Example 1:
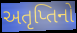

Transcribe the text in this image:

અતૃપ્તિનો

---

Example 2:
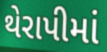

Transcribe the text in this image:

થેરાપીમાં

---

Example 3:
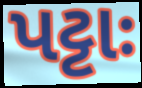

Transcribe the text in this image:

પટ્ટાઃ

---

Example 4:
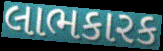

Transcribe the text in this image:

લાભકારક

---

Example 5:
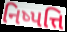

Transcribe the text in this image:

નિષ્પત્તિ